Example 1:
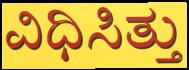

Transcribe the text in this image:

ವಿಧಿಸಿತ್ತು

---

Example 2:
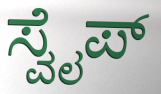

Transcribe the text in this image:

ಸ್ವೈಪ್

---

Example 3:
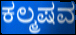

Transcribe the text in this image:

ಕಲ್ಮಷವ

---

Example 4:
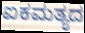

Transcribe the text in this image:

ಐಕಮತ್ಯದ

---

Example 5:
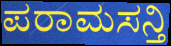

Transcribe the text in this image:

ಪರಾಮಸನ್ತಿ